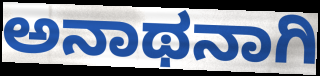
ಅನಾಥನಾಗಿ